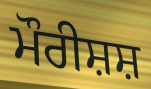
ਮੌਰੀਸ਼ਸ਼